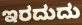
ಇರದುದು